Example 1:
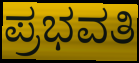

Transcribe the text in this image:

ಪ್ರಭವತಿ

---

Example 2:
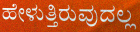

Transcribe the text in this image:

ಹೇಳುತ್ತಿರುವುದಲ್ಲ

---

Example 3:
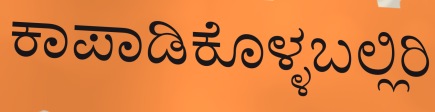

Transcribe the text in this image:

ಕಾಪಾಡಿಕೊಳ್ಳಬಲ್ಲಿರಿ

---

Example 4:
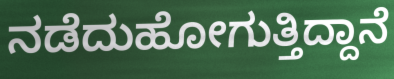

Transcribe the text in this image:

ನಡೆದುಹೋಗುತ್ತಿದ್ದಾನೆ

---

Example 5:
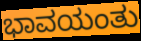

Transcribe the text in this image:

ಭಾವಯಂತು